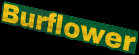
Burflower